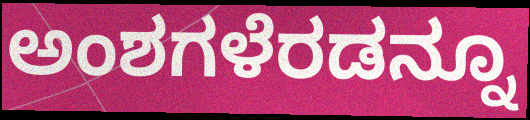
ಅಂಶಗಳೆರಡನ್ನೂ